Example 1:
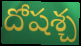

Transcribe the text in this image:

దోషశ్చ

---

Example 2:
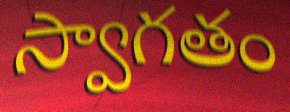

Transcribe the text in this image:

స్వాగతం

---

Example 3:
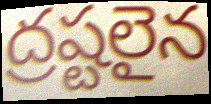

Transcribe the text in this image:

ద్రష్టలైన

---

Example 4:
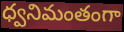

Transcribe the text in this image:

ధ్వనిమంతంగా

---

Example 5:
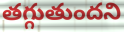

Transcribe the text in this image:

తగ్గుతుందని